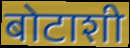
बोटाशी